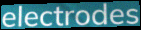
electrodes